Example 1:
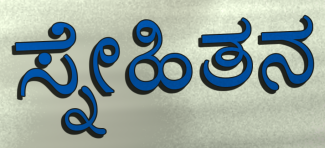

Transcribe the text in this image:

ಸ್ನೇಹಿತನ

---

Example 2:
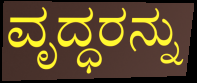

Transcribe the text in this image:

ವೃದ್ಧರನ್ನು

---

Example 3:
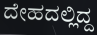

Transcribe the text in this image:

ದೇಹದಲ್ಲಿದ್ದ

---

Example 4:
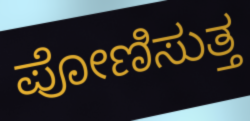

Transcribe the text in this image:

ಪೋಣಿಸುತ್ತ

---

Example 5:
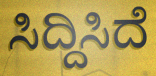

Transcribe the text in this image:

ಸಿದ್ದಿಸಿದೆ